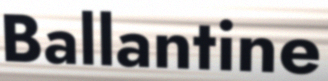
Ballantine